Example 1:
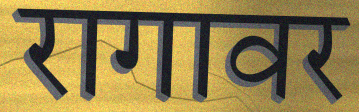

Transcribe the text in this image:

रागावर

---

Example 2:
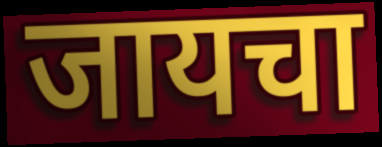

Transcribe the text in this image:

जायचा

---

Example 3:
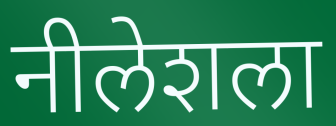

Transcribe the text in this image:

नीलेशला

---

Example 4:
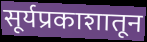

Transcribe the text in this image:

सूर्यप्रकाशातून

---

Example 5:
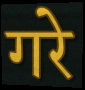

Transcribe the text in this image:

गरे